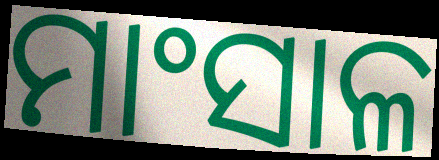
ମାଂସାଳ